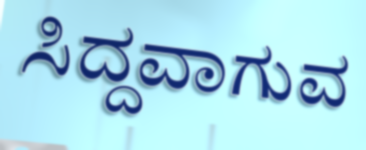
ಸಿದ್ದವಾಗುವ